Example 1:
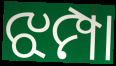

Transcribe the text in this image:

ଝମ୍ପା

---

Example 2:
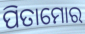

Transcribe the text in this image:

ପିତାମୋର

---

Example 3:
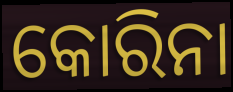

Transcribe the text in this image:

କୋରିନା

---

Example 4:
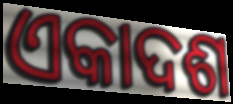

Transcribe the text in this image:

ଏକାଦଶ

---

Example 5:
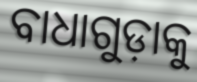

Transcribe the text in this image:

ବାଧାଗୁଡ଼ାକୁ